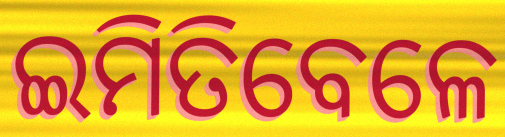
ଇମିତିବେଳେ